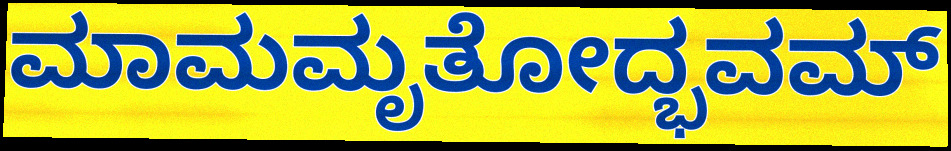
ಮಾಮಮೃತೋದ್ಭವಮ್